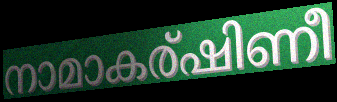
നാമാകര്ഷിണീ